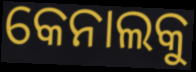
କେନାଲକୁ